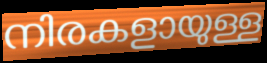
നിരകളായുള്ള